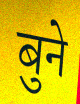
बुने